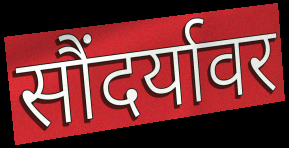
सौंदर्यावर